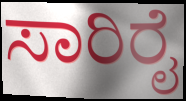
ಸಾರಿರೈ